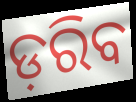
ଡ଼ରିବ